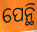
ପେନ୍ଥି